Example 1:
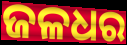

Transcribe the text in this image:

ଜଳଧର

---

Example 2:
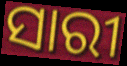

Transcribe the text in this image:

ସାରୀ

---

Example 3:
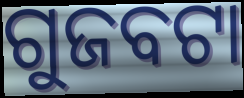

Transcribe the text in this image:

ଗୁଜବଟା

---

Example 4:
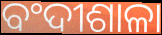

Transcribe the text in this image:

ବଂଦୀଶାଳା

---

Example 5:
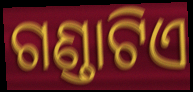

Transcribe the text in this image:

ଗଣ୍ଡାଟିଏ